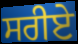
ਸਰੀਏ